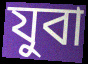
যুবা